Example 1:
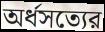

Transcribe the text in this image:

অর্ধসত্যের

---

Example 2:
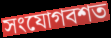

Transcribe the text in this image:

সংযোগবশত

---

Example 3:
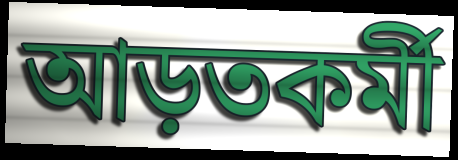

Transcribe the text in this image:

আড়তকর্মী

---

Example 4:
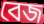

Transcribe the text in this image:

বেজ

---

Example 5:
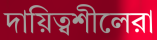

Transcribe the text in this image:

দায়িত্বশীলেরা